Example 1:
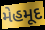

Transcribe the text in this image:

મેહમૂદ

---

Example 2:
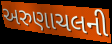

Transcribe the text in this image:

અરુણાચલની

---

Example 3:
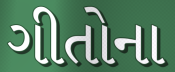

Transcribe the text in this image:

ગીતોના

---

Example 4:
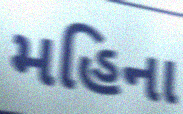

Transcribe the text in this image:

મહિના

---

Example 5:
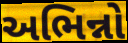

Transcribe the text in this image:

અભિન્નો